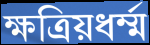
ক্ষত্রিয়ধর্ম্ম